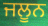
ਜਲੂਨ